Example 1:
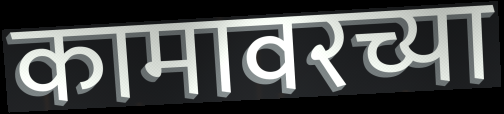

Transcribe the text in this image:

कामावरच्या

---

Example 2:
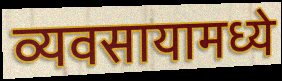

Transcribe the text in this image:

व्यवसायामध्ये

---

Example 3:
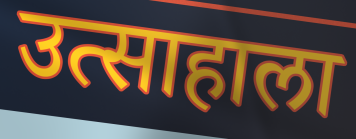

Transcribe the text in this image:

उत्साहाला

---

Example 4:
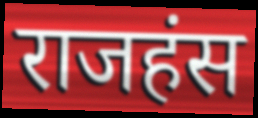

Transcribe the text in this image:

राजहंस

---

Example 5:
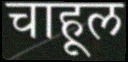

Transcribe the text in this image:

चाहूल